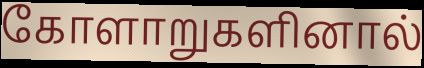
கோளாறுகளினால்